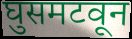
घुसमटवून